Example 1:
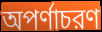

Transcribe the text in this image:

অপর্ণাচরণ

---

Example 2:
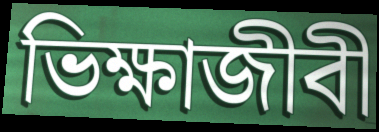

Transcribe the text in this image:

ভিক্ষাজীবী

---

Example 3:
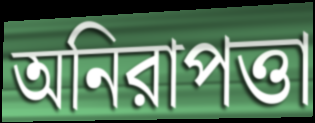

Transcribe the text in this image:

অনিরাপত্তা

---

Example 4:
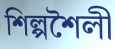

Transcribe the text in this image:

শিল্পশৈলী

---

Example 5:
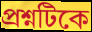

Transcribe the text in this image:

প্রশ্নটিকে